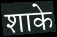
शाके